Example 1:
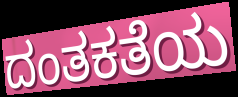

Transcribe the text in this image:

ದಂತಕತೆಯ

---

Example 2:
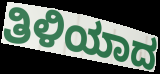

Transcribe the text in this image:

ತಿಳಿಯಾದ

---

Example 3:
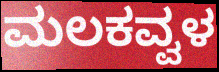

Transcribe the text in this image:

ಮಲಕವ್ವಳ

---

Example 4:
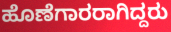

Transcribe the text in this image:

ಹೊಣೆಗಾರರಾಗಿದ್ದರು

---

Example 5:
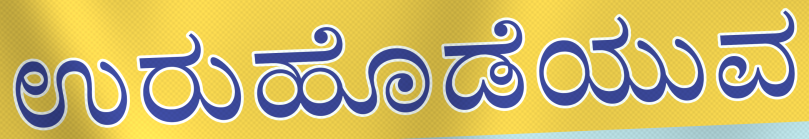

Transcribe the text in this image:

ಉರುಹೊಡೆಯುವ